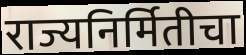
राज्यनिर्मितीचा